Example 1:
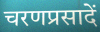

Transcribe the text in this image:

चरणप्रसादें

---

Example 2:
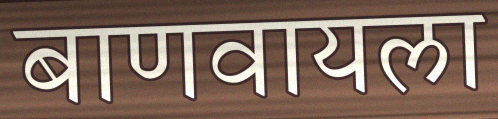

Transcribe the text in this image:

बाणवायला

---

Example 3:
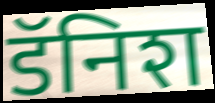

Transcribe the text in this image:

डॅनिश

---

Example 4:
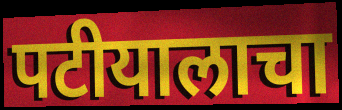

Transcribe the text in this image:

पटीयालाचा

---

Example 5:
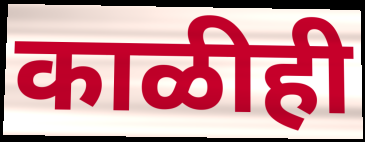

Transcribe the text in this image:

काळीही